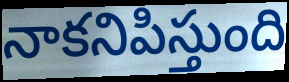
నాకనిపిస్తుంది